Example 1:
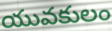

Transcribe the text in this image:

యువకులం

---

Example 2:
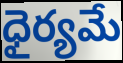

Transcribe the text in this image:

ధైర్యమే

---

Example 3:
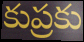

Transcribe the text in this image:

కుప్రకు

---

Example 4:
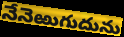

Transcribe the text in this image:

నేనెఱుగుదును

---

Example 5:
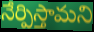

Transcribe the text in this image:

నేర్పిస్తామని